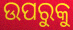
ଉପରୁକୁ